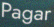
Pagar